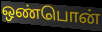
ஒண்பொன்